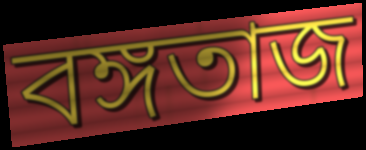
বঙ্গতাজ